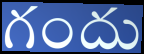
గందు